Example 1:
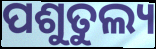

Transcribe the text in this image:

ପଶୁତୁଲ୍ୟ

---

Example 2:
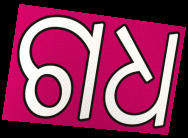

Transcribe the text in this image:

ଗଧ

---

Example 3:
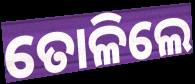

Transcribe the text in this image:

ତୋଳିଲେ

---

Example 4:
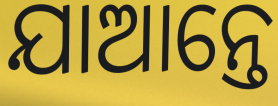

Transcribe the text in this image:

ଯାଆନ୍ତେ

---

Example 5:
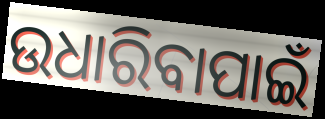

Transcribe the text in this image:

ଉଧାରିବାପାଇଁ